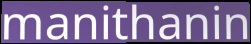
manithanin